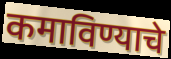
कमाविण्याचे